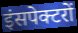
इंसपेक्टरों